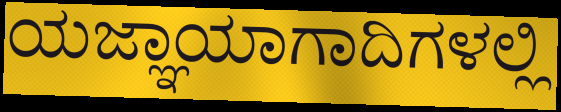
ಯಜ್ಞಾಯಾಗಾದಿಗಳಲ್ಲಿ